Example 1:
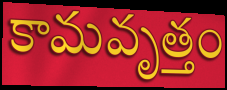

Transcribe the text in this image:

కామవృత్తం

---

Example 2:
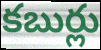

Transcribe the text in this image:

కబుర్లు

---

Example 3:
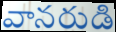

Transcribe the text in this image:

వానరుడి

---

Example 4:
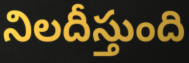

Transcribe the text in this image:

నిలదీస్తుంది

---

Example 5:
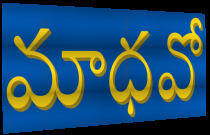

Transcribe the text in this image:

మాధవో